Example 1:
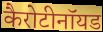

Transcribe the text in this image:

कैरोटीनॉयड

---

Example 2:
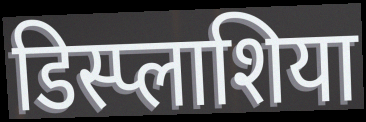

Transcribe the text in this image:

डिस्प्लाशिया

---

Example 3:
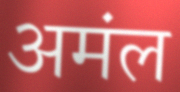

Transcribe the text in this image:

अमंल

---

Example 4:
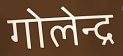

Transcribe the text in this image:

गोलेन्द्र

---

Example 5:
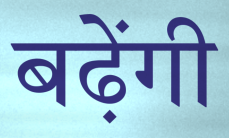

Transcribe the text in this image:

बढ़ेंगी